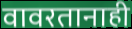
वावरतानाही